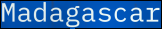
Madagascar